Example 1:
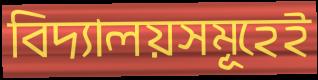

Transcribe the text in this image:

বিদ্যালয়সমূহেই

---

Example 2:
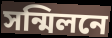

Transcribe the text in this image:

সন্মিলনে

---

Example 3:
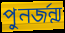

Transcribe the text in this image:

পুনৰ্জন্ম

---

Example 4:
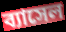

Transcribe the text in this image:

ব্যাসেল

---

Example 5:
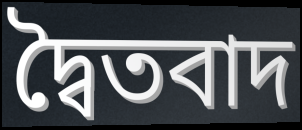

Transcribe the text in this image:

দ্বৈতবাদ